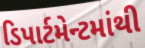
ડિપાર્ટમેન્ટમાંથી